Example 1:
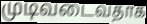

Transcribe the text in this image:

முடிவடைவதாக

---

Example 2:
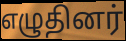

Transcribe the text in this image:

எழுதினர்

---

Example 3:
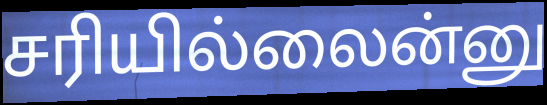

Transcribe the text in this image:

சரியில்லைன்னு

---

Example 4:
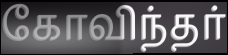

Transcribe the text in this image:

கோவிந்தர்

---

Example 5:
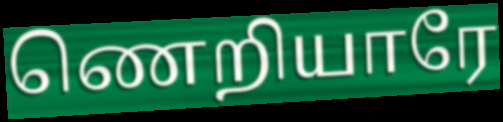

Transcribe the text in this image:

ணெறியாரே